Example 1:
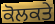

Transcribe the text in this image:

ਕੋਲਕਤੇ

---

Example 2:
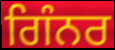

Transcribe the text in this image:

ਗਿੰਨਰ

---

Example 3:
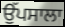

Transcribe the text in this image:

ਉੱਪਸਾਲਾ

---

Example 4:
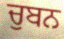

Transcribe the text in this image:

ਚੁਬਨ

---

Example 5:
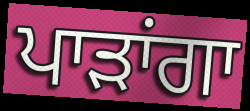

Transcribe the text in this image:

ਪਾੜਾਂਗਾ